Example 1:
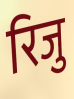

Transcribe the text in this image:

रिजु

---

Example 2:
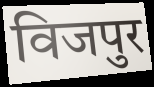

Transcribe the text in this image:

विजपुर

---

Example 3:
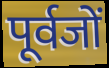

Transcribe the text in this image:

पूर्वजों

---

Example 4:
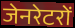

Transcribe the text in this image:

जेनरेटरों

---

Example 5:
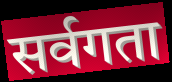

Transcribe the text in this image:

सर्वगता